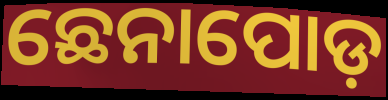
ଛେନାପୋଡ଼